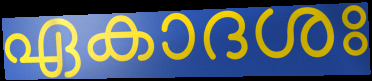
ഏകാദശഃ